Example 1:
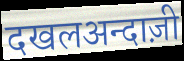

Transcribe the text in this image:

दखलअन्दाज़ी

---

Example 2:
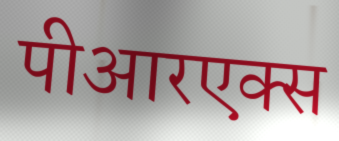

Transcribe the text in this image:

पीआरएक्स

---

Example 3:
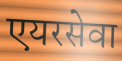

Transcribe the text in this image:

एयरसेवा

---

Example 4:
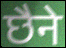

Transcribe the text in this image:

छैने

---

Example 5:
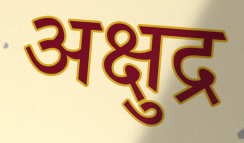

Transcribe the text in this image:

अक्षुद्र